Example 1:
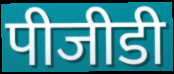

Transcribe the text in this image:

पीजीडी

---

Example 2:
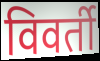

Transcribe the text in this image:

विवर्ती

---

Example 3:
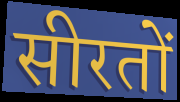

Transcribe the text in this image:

सीरतों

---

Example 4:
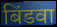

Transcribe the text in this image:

बिंडवा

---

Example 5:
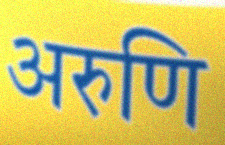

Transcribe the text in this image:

अरुणि